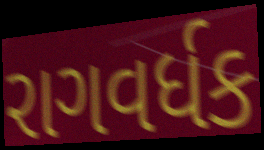
રાગવર્ધક